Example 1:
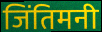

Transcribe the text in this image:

जिंतिमनी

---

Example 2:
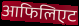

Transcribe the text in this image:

आफिलिएट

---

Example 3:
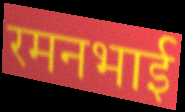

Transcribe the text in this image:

रमनभाई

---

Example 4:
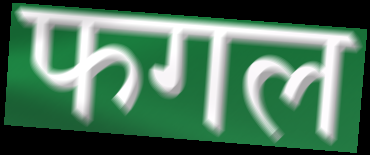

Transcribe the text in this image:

फगल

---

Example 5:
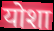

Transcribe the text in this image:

योशा